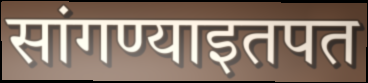
सांगण्याइतपत